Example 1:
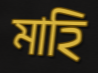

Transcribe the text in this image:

মাহি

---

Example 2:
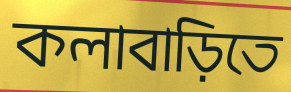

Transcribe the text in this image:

কলাবাড়িতে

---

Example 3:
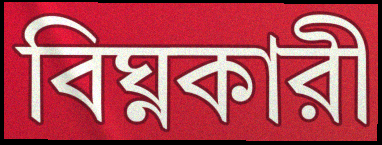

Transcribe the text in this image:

বিঘ্নকারী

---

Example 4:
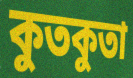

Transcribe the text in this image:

কুতকুতা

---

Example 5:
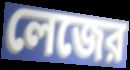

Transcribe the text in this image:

লেজের